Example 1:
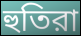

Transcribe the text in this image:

হুতিরা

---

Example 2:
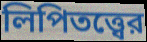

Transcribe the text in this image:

লিপিতত্ত্বের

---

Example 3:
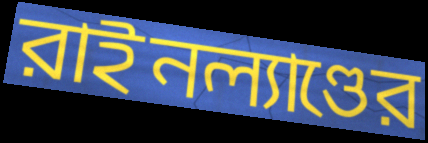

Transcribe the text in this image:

রাইনল্যাণ্ডের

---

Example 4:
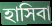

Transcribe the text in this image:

হাসিবা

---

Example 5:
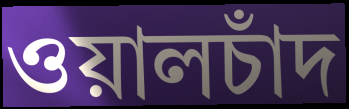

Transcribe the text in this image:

ওয়ালচাঁদ